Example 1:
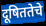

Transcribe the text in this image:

दूषिततेचे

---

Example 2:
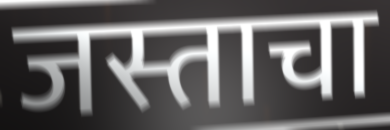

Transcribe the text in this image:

जस्ताचा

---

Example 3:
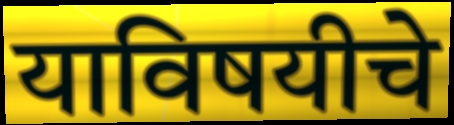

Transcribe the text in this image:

याविषयीचे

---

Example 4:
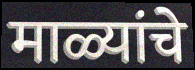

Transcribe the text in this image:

माळ्यांचे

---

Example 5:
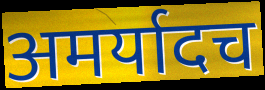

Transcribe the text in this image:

अमर्यादच